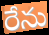
రేను